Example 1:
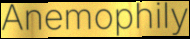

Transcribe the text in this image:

Anemophily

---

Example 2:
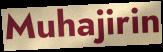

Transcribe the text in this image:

Muhajirin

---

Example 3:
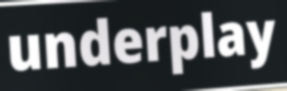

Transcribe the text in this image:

underplay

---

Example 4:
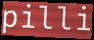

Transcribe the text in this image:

pilli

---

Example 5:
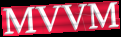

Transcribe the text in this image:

MVVM